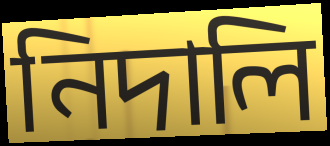
নিদালি